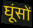
घूंसों